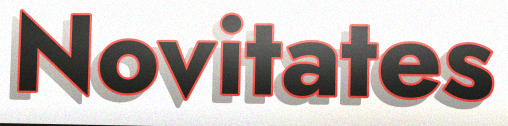
Novitates